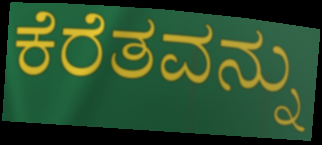
ಕೆರೆತವನ್ನು